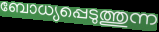
ബോധ്യപ്പെടുത്തുന്ന